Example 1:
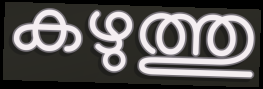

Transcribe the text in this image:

കഴുത്തു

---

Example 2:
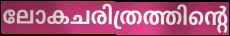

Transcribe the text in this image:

ലോകചരിത്രത്തിന്റെ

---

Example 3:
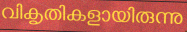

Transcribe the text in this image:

വികൃതികളായിരുന്നു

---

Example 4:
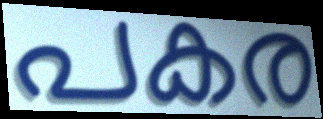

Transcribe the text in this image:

പകര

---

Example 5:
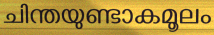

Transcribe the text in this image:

ചിന്തയുണ്ടാകമൂലം